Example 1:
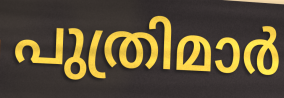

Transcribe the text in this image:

പുത്രിമാർ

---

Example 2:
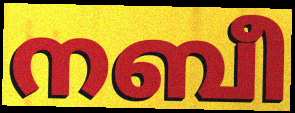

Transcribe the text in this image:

നബീ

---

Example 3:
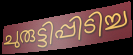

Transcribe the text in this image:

ചുരുട്ടിപ്പിടിച്ച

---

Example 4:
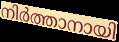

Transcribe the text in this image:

നിർത്താനായി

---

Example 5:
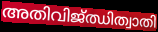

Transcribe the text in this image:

അതിവിജ്ഝിത്വാതി